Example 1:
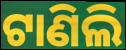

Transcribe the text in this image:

ଟାଣିଲି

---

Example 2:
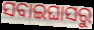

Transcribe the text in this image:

ସବାଇଘାସରୁ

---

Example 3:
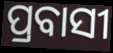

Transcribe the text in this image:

ପ୍ରବାସୀ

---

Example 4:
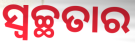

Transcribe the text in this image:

ସ୍ଵଚ୍ଛତାର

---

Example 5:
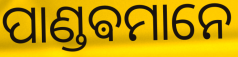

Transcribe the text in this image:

ପାଣ୍ଡଵମାନେ